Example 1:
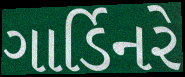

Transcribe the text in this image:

ગાર્ડિનરે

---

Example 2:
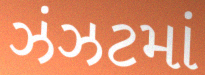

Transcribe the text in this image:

ઝંઝટમાં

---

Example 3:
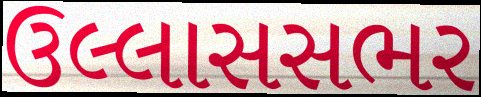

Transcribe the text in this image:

ઉલ્લાસસભર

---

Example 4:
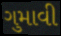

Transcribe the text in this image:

ગુમાવી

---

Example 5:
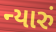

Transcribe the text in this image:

ન્યારું